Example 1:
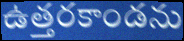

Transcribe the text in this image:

ఉత్తరకాండను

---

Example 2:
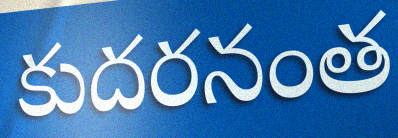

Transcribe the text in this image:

కుదరనంత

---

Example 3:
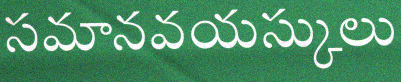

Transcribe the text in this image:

సమానవయస్కులు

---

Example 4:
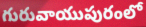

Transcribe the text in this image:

గురువాయుపురంలో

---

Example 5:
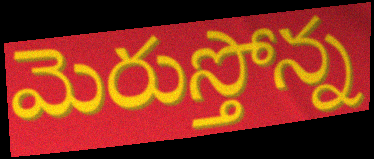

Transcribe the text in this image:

మెరుస్తోన్న